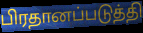
பிரதானப்படுத்தி